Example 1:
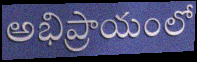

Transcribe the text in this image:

అభిప్రాయంలో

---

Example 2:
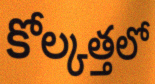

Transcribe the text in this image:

కోల్కత్తలో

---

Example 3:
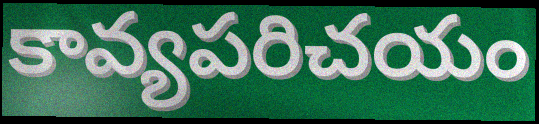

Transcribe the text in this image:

కావ్యపరిచయం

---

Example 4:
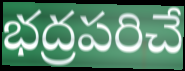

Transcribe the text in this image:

భద్రపరిచే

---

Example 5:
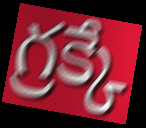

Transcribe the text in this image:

గ్రక్కే